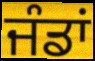
ਜੰਡਾਂ